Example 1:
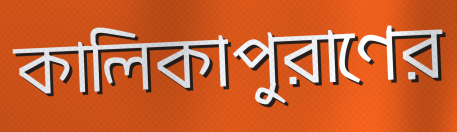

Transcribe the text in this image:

কালিকাপুরাণের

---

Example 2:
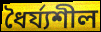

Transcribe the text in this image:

ধৈর্য্যশীল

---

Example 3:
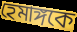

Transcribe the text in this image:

হেমাঙ্গকে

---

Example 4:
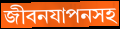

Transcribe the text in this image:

জীবনযাপনসহ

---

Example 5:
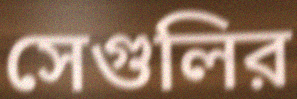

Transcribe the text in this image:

সেগুলির